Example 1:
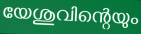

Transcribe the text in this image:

യേശുവിന്റെയും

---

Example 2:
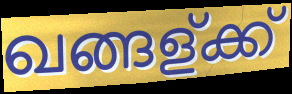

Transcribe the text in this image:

ഖങ്ങള്ക്ക്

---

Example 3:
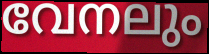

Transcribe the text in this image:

വേനലും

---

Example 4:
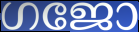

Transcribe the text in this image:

ഗജോ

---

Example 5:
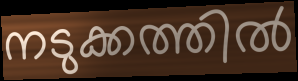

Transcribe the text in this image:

നടുക്കത്തിൽ